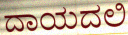
ದಾಯದಲಿ